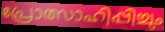
പ്രോത്സാഹിപ്പിച്ചും